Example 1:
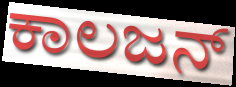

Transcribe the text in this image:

ಕಾಲಜನ್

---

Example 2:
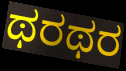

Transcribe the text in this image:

ಥರಥರ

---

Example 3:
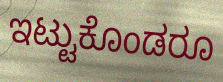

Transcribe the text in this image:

ಇಟ್ಟುಕೊಂಡರೂ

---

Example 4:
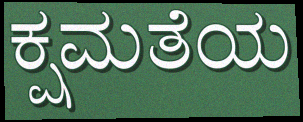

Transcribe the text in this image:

ಕ್ಷಮತೆಯ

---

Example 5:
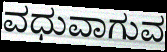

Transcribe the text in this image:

ವಧುವಾಗುವ